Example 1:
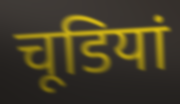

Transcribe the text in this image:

चूडियां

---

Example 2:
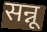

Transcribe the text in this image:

सन्नू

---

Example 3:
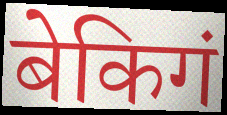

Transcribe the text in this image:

बेकिगं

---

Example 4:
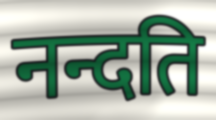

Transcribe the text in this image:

नन्दति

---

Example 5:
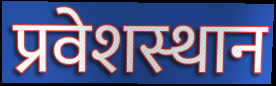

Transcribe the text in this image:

प्रवेशस्थान